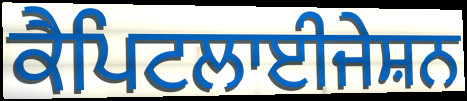
ਕੈਪਿਟਲਾਈਜੇਸ਼ਨ